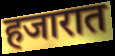
हजारात